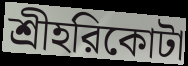
শ্রীহরিকোটা